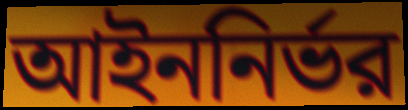
আইননির্ভর